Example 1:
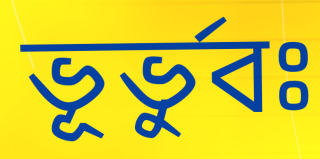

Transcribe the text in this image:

ভূর্ভুবঃ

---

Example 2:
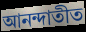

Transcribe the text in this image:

আনন্দাতীত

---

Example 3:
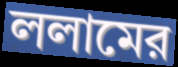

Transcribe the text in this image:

ললামের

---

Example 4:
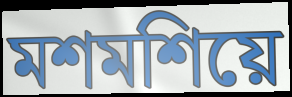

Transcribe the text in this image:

মশমশিয়ে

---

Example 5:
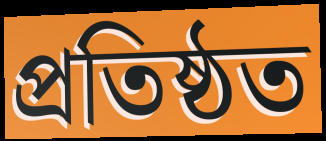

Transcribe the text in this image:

প্রতিষ্ঠত